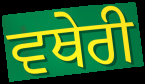
ਵਥੇਰੀ